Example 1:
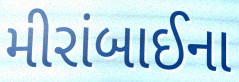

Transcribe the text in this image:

મીરાંબાઈના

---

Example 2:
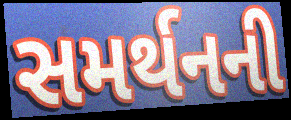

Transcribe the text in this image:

સમર્થનની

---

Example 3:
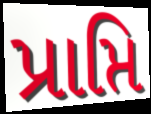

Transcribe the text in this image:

પ્રાપ્તિ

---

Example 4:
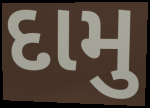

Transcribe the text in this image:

દામુ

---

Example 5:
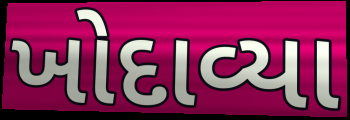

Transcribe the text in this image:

ખોદાવ્યા